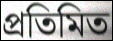
প্রতিমিত